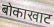
बोकाखाट